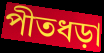
পীতধড়া